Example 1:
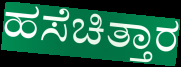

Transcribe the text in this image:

ಹಸೆಚಿತ್ತಾರ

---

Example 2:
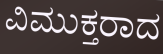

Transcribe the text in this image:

ವಿಮುಕ್ತರಾದ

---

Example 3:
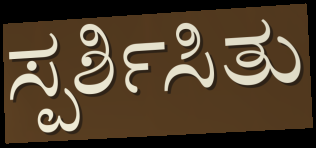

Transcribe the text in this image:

ಸ್ಪರ್ಶಿಸಿತು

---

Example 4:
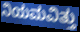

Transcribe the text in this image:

ನಿಯಮವಿತ್ತು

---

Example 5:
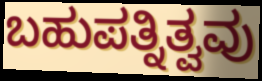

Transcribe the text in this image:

ಬಹುಪತ್ನಿತ್ವವು